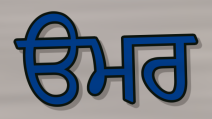
ੳਮਰ